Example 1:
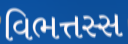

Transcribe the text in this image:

વિભત્તસ્સ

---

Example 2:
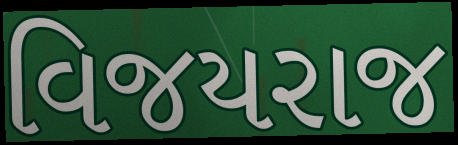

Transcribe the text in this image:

વિજયરાજ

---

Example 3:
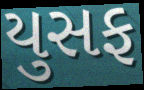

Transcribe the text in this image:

યુસફ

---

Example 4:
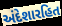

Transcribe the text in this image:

અંદેશારહિત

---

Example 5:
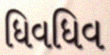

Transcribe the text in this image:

ધિવધિવ